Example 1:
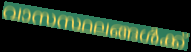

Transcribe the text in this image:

വാസസ്ഥലങ്ങൾക്ക്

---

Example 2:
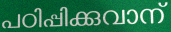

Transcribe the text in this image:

പഠിപ്പിക്കുവാന്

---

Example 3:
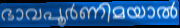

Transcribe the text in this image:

ഭാവപൂർണിമയാൽ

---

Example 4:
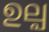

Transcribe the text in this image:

ഉല്പ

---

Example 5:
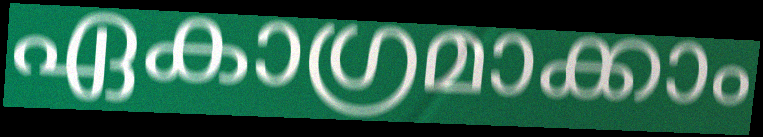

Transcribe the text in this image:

ഏകാഗ്രമാക്കാം